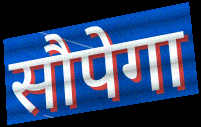
सौपेगा